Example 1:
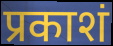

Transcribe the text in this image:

प्रकाशं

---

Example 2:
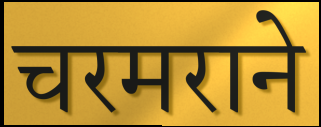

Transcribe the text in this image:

चरमराने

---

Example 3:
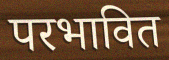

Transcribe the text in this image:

परभावित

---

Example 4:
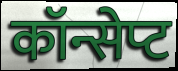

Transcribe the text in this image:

कॉन्‍सेप्‍ट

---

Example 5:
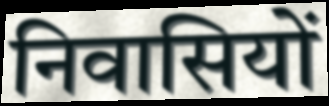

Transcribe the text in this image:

निवासियों